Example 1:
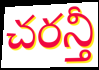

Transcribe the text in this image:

చరన్తీ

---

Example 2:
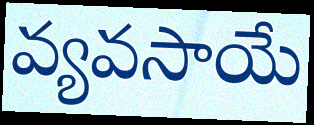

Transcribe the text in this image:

వ్యవసాయే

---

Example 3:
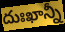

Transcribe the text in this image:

దుఃఖాన్నీ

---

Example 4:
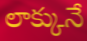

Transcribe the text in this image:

లాక్కునే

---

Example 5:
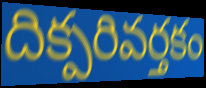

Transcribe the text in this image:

దిక్పరివర్తకం